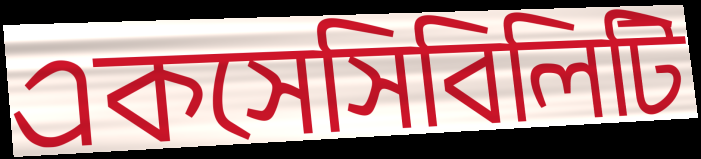
একসেসিবিলিটি